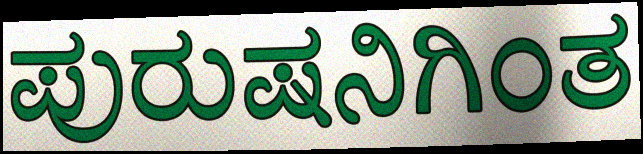
ಪುರುಷನಿಗಿಂತ